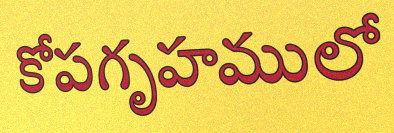
కోపగృహములో